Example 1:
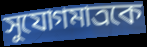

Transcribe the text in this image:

সুযোগমাত্রকে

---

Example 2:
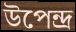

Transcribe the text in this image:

উপেন্দ্র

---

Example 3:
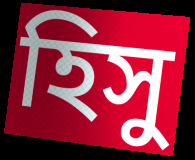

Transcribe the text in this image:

হিসু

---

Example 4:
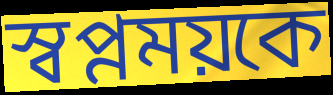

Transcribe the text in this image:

স্বপ্নময়কে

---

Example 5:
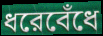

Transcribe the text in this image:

ধরেবেঁধে